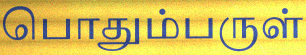
பொதும்பருள்